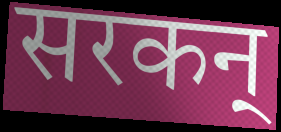
सरकन्